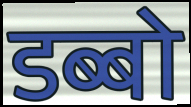
डब्बो